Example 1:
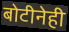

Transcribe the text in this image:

बोटीनेही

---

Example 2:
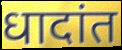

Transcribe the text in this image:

धादांत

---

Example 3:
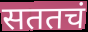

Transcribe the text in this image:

सततचं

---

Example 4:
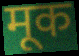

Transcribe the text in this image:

मूक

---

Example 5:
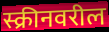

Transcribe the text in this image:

स्क्रीनवरील